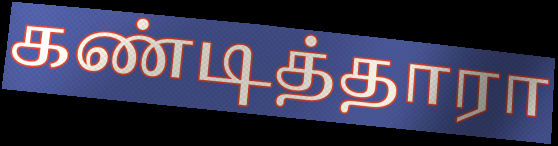
கண்டித்தாரா